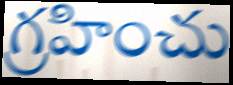
గ్రహించు